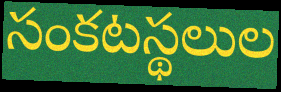
సంకటస్థలుల